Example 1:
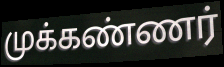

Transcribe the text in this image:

முக்கண்ணர்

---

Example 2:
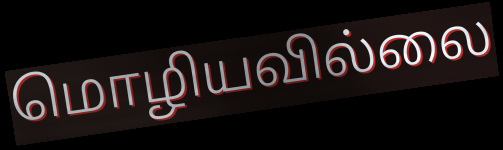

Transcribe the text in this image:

மொழியவில்லை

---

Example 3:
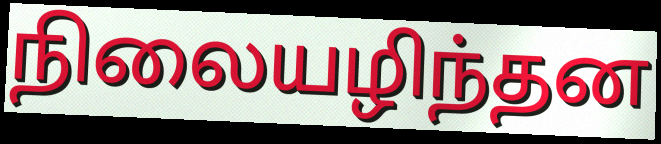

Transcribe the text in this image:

நிலையழிந்தன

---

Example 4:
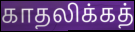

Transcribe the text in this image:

காதலிக்கத்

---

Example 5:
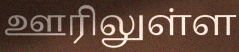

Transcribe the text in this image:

ஊரிலுள்ள